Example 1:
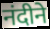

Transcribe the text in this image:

नंदीने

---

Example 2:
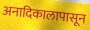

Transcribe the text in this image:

अनादिकालापासून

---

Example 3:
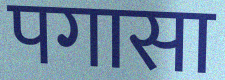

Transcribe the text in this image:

पगासा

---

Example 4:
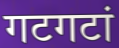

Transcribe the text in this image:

गटगटां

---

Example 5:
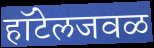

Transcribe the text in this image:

हॉटेलजवळ